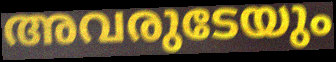
അവരുടേയും